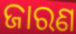
ଜାରଣ